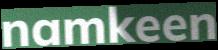
namkeen